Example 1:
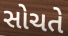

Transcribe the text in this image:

સોચતે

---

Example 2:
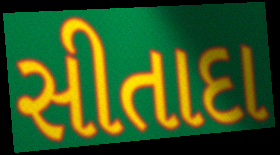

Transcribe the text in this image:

સીતાદા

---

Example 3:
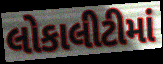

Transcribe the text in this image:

લોકાલીટીમાં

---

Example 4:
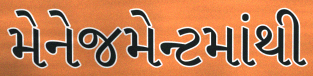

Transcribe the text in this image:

મેનેજમેન્ટમાંથી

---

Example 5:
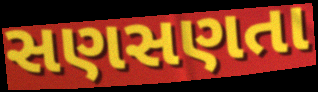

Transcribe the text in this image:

સણસણતા